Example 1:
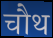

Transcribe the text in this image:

चौथ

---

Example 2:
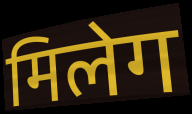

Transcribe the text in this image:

मिलेग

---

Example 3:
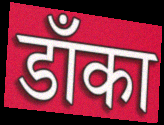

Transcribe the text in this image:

डाँका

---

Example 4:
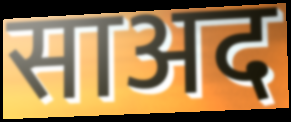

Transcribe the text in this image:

साअद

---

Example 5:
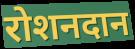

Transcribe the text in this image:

रोशनदान